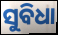
ସୁବିଧା